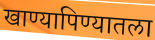
खाण्यापिण्यातला